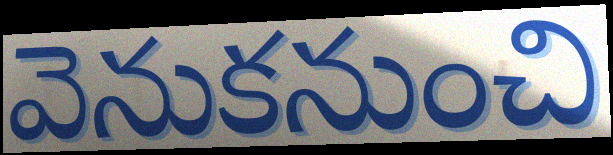
వెనుకనుంచి